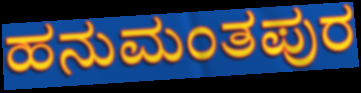
ಹನುಮಂತಪುರ